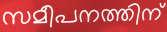
സമീപനത്തിന്